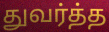
துவர்த்த